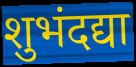
शुभंदद्या